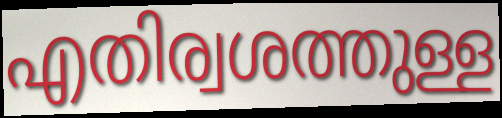
എതിര്വശത്തുള്ള